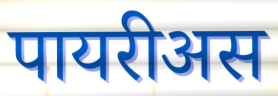
पायरीअस